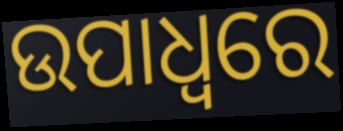
ଉପାଧ୍ଵରେ